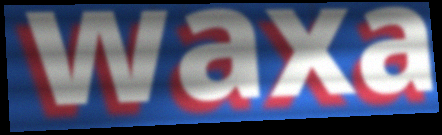
waxa